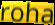
roha